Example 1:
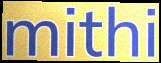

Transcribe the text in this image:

mithi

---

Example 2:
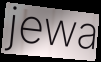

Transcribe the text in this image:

jewa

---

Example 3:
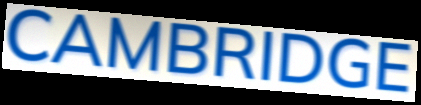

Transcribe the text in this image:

CAMBRIDGE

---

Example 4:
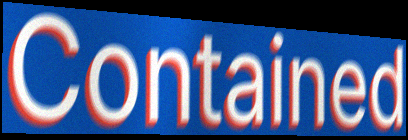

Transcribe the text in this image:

Contained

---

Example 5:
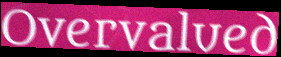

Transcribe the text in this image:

Overvalued